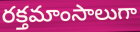
రక్తమాంసాలుగా